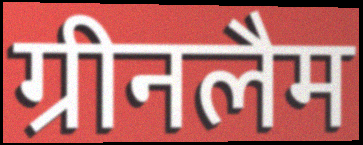
ग्रीनलैम